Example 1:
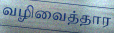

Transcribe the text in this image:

வழிவைத்தார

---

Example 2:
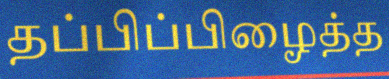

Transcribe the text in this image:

தப்பிப்பிழைத்த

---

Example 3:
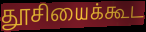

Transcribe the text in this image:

தூசியைக்கூட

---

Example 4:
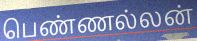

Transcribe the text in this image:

பெண்ணல்லன்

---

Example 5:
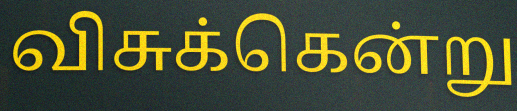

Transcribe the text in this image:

விசுக்கென்று